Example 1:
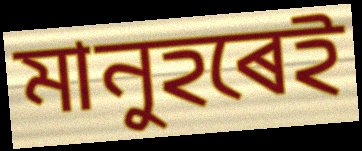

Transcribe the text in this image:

মানুহৰেই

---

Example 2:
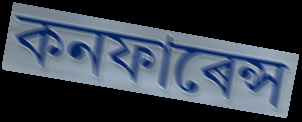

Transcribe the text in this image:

কনফাৰেন্স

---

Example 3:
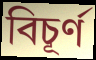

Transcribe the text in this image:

বিচূৰ্ণ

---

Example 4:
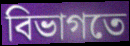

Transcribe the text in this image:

বিভাগতে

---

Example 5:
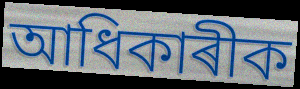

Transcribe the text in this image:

আধিকাৰীক